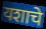
यशाचे